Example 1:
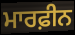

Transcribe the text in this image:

ਮਾਰਫ਼ੀਨ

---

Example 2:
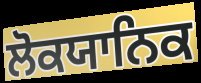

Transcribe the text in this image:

ਲੋਕਯਾਨਿਕ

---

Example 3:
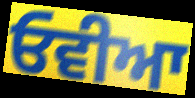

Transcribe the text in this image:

ਓਵੀਆ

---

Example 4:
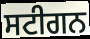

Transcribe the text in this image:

ਸਟੀਗਨ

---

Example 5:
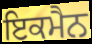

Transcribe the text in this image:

ਇਕਮੈਨ